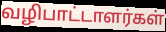
வழிபாட்டாளர்கள்